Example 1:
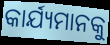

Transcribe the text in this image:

କାର୍ଯ୍ୟମାନକୁ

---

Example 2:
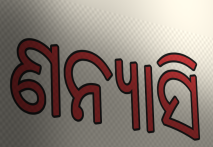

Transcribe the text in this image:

ଣନ୍ୟାସି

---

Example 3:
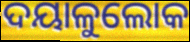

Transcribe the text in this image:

ଦୟାଳୁଲୋକ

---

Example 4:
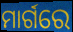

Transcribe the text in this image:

ମାର୍ଗରେ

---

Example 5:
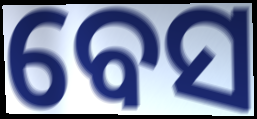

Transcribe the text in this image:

ବେସ